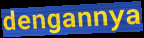
dengannya